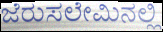
ಜೆರುಸಲೇಮಿನಲ್ಲಿ